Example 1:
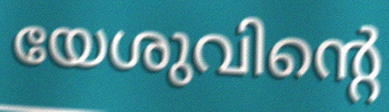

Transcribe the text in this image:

യേശുവിന്റെ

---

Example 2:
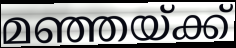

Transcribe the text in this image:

മഞ്ഞയ്ക്ക്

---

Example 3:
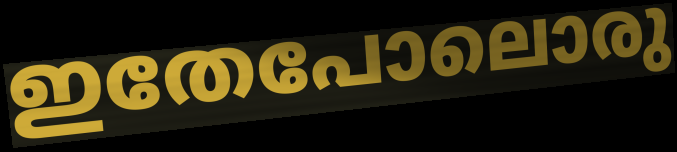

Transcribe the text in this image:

ഇതേപോലൊരു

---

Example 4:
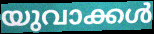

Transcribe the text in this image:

യുവാക്കൾ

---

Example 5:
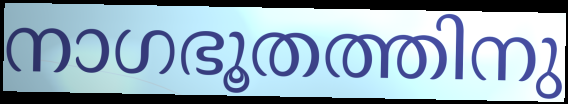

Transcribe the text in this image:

നാഗഭൂതത്തിനു